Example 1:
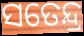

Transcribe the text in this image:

ସତେନ୍ଦ୍ର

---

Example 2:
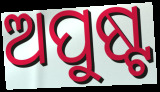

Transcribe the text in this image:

ଅପୁଷ୍ଟ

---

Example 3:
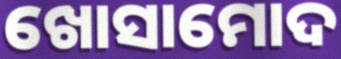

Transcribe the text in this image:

ଖୋସାମୋଦ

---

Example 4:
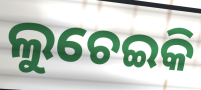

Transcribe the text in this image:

ଲୁଚେଇକି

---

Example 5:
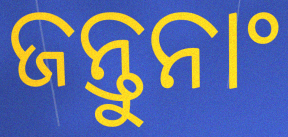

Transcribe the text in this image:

ଜନ୍ତୁନାଂ